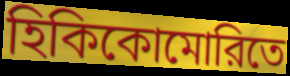
হিকিকোমোরিতে